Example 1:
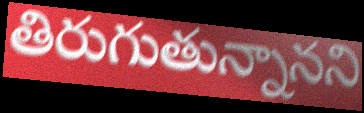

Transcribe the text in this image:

తిరుగుతున్నానని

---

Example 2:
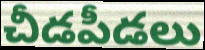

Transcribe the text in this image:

చీడపీడలు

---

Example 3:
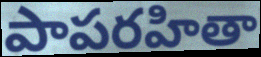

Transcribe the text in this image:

పాపరహితా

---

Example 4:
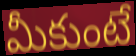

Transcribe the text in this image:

మీకుంటే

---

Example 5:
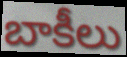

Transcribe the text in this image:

బాకీలు